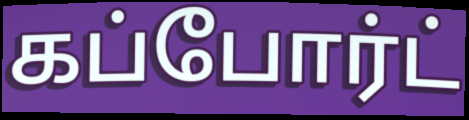
கப்போர்ட்